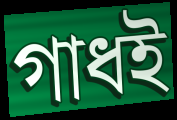
গাধই